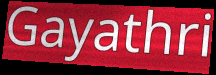
Gayathri